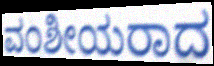
ವಂಶೀಯರಾದ